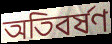
অতিবর্ষণ